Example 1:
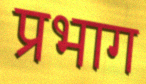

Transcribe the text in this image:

प्रभाग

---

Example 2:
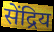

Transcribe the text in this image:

सेंद्रिय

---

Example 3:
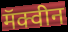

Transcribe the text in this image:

मॅक्वीन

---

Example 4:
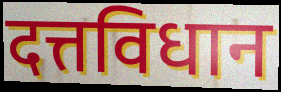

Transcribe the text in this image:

दत्तविधान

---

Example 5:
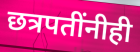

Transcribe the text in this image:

छत्रपतींनीही